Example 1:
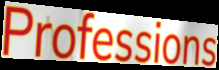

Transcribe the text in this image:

Professions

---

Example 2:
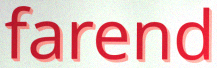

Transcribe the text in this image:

farend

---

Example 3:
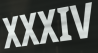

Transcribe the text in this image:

XXXIV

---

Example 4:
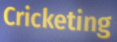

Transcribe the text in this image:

Cricketing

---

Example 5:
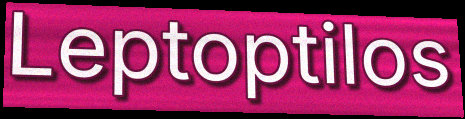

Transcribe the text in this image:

Leptoptilos